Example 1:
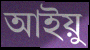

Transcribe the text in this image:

আইয়ু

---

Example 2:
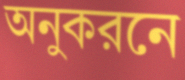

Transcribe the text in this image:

অনুকরনে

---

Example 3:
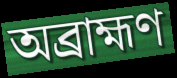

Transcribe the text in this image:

অব্রাহ্মণ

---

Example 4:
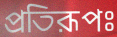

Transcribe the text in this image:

প্রতিরূপঃ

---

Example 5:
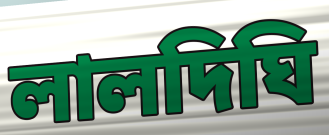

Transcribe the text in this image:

লালদিঘি